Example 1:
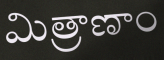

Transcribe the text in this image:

మిత్రాణాం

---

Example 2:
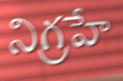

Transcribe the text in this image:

నిగ్రహే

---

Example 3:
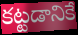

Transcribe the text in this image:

కట్టడానికే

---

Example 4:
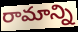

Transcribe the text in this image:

రామాన్ని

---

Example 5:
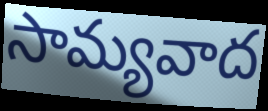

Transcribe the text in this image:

సామ్యవాద